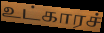
உட்காரச்